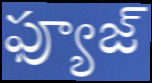
ఫ్యూజ్